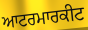
ਆਟਰਮਾਰਕੀਟ